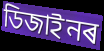
ডিজাইনৰ